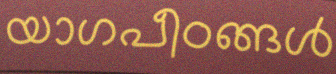
യാഗപീഠങ്ങൾ